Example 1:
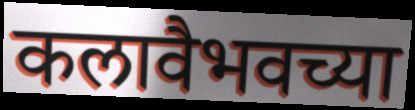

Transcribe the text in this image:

कलावैभवच्या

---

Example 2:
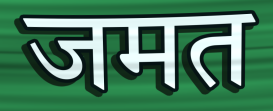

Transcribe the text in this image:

जमत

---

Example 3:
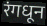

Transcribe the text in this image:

रंगधून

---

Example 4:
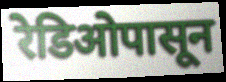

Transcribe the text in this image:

रेडिओपासून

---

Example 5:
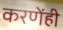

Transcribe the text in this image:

करणेंही